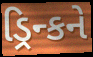
ડ્રિન્કને